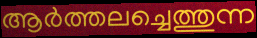
ആർത്തലച്ചെത്തുന്ന